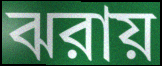
ঝরায়